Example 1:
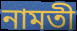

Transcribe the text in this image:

নামতী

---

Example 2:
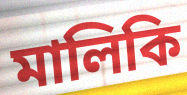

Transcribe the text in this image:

মালিকি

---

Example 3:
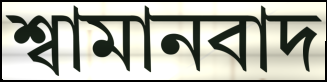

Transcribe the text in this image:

শ্বামানবাদ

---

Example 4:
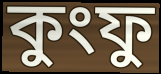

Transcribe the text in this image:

কুংফু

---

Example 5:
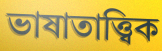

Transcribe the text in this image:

ভাষাতাত্ত্বিক